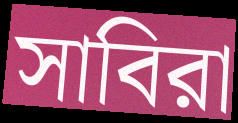
সাবিরা